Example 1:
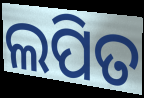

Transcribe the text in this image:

ଲପିତ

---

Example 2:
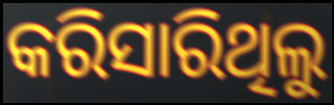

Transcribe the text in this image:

କରିସାରିଥିଲୁ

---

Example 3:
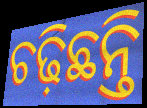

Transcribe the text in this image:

ଚଢ଼ିଛନ୍ତି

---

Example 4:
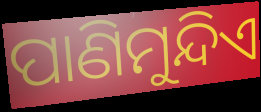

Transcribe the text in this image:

ପାଣିମୁନ୍ଦିଏ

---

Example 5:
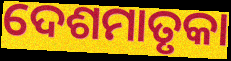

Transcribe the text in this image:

ଦେଶମାତୃକା